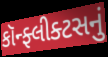
કૉન્ફ્લીક્ટસનું